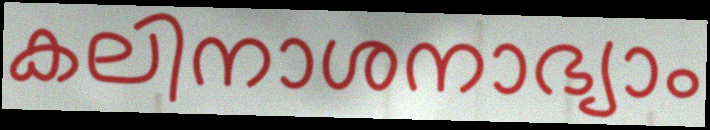
കലിനാശനാഭ്യാം